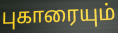
புகாரையும்